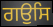
ਗਉਸਿ